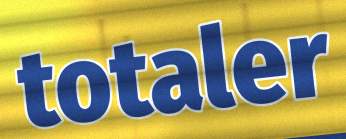
totaler